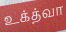
உக்த்வா